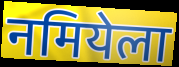
नमियेला